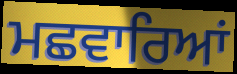
ਮਛਵਾਰਿਆਂ